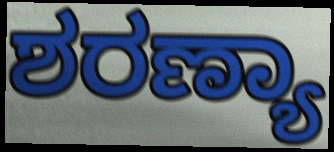
ಶರಣ್ಯಾ